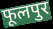
फूलपुर